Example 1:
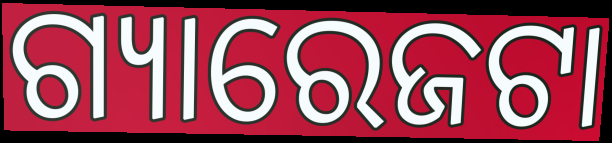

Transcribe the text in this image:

ଗ୍ୟାରେଜଟା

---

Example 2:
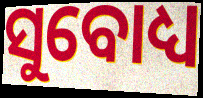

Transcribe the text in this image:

ସୁବୋଧ୍ୟ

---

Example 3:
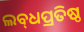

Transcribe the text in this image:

ଲବ୍‌ଧପ୍ରତିଷ୍ଠ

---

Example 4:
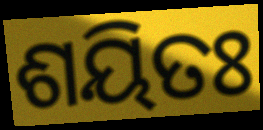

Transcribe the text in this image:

ଶୟିତଃ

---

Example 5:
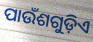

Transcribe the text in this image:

ପାଉଁଶଗୁଡ଼ିଏ